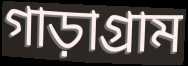
গাড়াগ্রাম